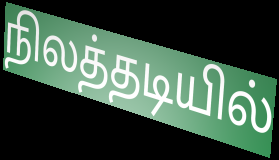
நிலத்தடியில்